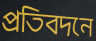
প্রতিবদনে